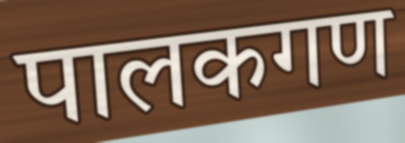
पालकगण